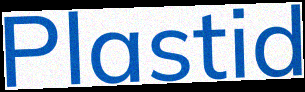
Plastid